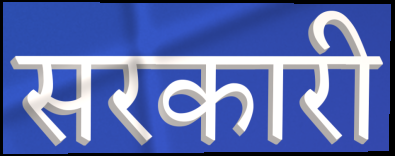
सरकारी